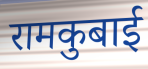
रामकुबाई